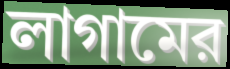
লাগামের